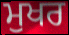
ਮੁਖਰ